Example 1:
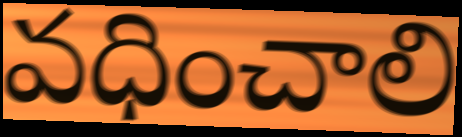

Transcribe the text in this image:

వధించాలి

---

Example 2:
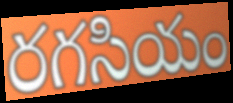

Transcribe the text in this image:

రగసియం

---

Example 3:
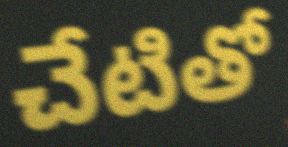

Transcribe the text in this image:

చేటితో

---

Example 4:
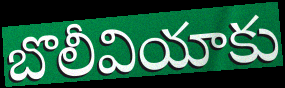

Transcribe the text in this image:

బొలీవియాకు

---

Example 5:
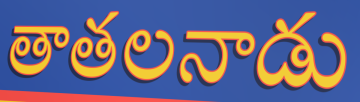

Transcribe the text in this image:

తాతలనాడు